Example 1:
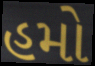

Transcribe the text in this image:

હમો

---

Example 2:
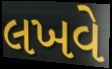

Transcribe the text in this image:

લખવે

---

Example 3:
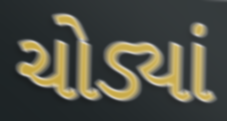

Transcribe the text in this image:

ચોડ્યાં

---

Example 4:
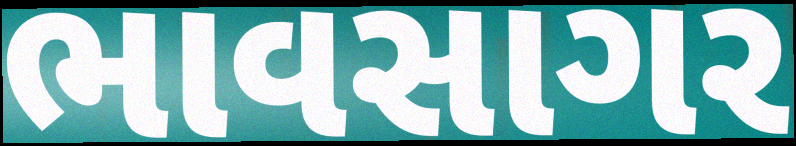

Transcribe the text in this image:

ભાવસાગર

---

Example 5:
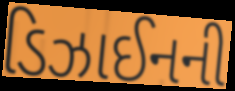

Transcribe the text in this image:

ડિઝાઈનની